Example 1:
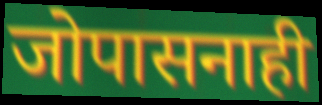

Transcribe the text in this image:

जोपासनाही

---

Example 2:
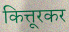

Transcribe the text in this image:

कित्तूरकर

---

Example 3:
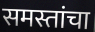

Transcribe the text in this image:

समस्तांचा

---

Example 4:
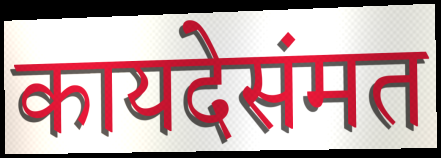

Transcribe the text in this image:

कायदेसंमत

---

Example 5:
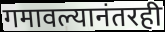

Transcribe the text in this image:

गमावल्यानंतरही